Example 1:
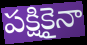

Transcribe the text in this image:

పక్షికైనా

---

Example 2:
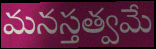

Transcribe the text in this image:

మనస్తత్వమే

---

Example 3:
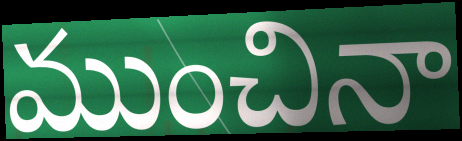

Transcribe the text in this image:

ముంచినా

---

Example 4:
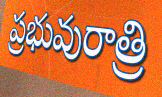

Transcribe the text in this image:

ప్రభువురాత్రి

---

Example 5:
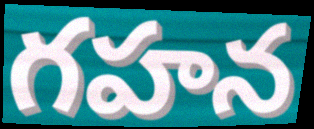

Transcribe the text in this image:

గహన